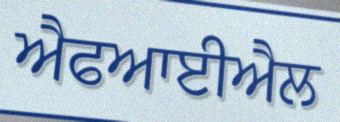
ਐਫਆਈਐਲ